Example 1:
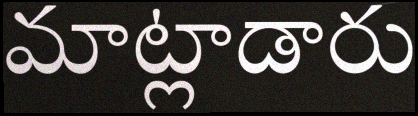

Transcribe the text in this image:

మాట్లాడారు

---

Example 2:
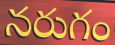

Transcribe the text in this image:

నరుగం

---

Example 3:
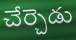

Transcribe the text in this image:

చేర్చెడు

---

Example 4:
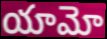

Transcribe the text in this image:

యామో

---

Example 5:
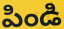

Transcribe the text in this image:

పిండి